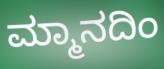
ಮ್ಮಾನದಿಂ